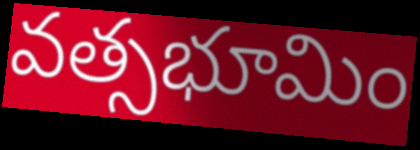
వత్సభూమిం